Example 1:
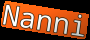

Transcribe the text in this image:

Nanni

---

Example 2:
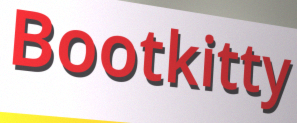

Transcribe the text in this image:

Bootkitty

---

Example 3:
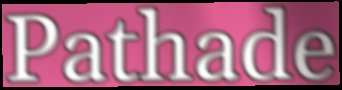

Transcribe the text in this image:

Pathade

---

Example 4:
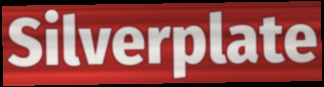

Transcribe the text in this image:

Silverplate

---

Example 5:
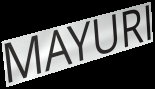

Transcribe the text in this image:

MAYURI